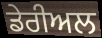
ਡੇਰੀਅਲ